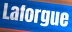
Laforgue